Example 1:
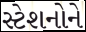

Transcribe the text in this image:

સ્ટેશનોને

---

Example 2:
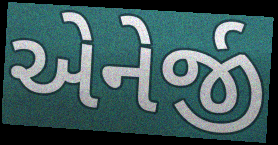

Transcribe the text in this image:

એનેર્જી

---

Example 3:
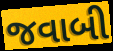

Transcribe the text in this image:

જવાબી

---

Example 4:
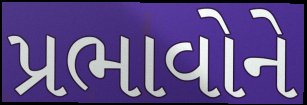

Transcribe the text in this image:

પ્રભાવોને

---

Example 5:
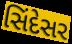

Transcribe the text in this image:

સિંદેસર